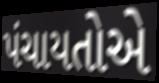
પંચાયતોએ